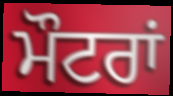
ਮੌਟਰਾਂ